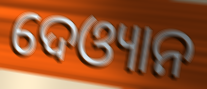
ଦେଓ୍ୟାନ